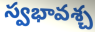
స్వభావశ్చ